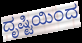
ದೃಷ್ಟಿಯಿಂದ